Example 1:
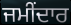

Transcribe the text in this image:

ਜਮੀਂਦਾਰ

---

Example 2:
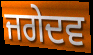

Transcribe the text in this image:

ਜਗੇਦਵ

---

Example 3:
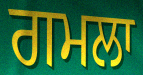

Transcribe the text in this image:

ਗਮਲਾ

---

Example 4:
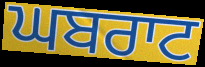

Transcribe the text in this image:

ਘਬਰਾਟ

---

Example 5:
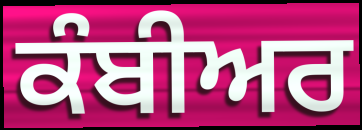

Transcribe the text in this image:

ਕੰਬੀਅਰ